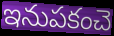
ఇనుపకంచె